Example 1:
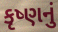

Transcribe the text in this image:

કૃષ્ણનું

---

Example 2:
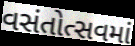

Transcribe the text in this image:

વસંતોત્સવમાં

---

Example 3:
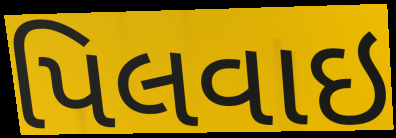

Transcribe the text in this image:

પિલવાઇ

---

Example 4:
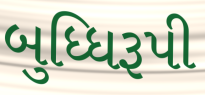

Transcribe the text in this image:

બુધ્ધિરૂપી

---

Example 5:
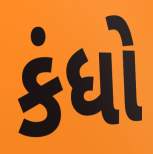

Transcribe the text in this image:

કંધો